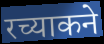
रच्याकने